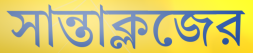
সান্তাক্লজের